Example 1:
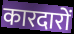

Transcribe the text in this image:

कारदारों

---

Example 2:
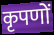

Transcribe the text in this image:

कृपणों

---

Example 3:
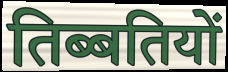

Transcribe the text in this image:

तिब्बतियों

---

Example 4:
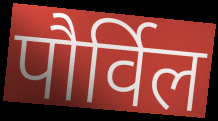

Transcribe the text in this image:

पौर्विल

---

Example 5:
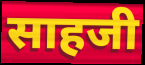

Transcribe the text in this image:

साहजी